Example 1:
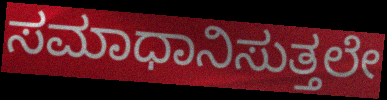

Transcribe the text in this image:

ಸಮಾಧಾನಿಸುತ್ತಲೇ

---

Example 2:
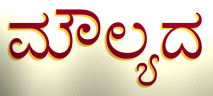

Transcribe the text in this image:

ಮೌಲ್ಯದ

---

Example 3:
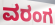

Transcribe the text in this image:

ವರಂಗ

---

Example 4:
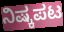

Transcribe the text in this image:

ನಿಷ್ಕಪಟ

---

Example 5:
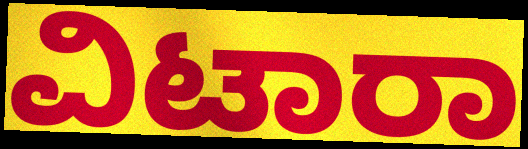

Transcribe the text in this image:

ವಿಟಾರಾ